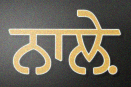
ਨਾਲ਼ੇ